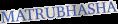
MATRUBHASHA